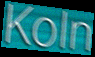
Koln